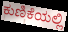
ಕುಣಿಕೆಯಲ್ಲಿ